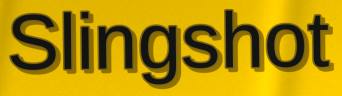
Slingshot